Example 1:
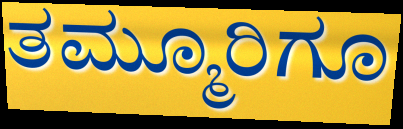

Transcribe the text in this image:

ತಮ್ಮೂರಿಗೂ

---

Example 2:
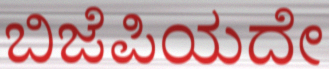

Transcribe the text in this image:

ಬಿಜೆಪಿಯದೇ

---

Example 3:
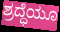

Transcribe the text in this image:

ಶ್ರದ್ಧೆಯೂ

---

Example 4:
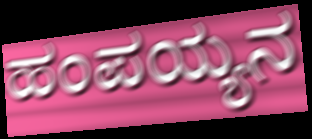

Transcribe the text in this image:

ಹಂಪಯ್ಯನ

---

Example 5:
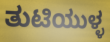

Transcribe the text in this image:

ತುಟಿಯುಳ್ಳ